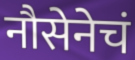
नौसेनेचं